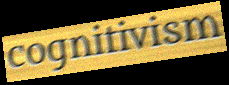
cognitivism